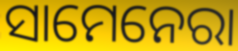
ସାମେନେରା